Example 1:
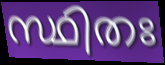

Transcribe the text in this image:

സ്ഥിതഃ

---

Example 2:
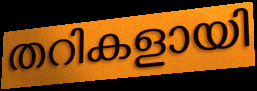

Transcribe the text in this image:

തറികളായി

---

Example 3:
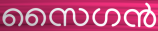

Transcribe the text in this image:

സൈഗൻ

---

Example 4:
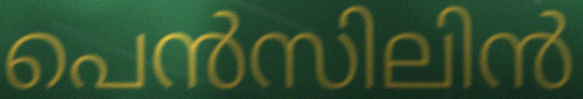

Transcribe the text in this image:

പെൻസിലിൻ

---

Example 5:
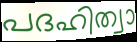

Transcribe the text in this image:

പദഹിത്വാ